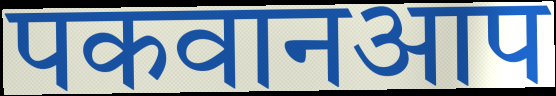
पकवानआप